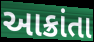
આક્રાંતા